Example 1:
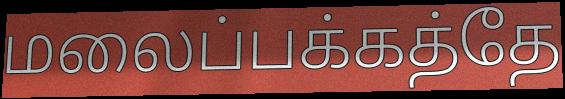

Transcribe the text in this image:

மலைப்பக்கத்தே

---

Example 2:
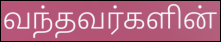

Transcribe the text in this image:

வந்தவர்களின்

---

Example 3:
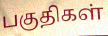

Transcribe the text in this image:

பகுதிகள்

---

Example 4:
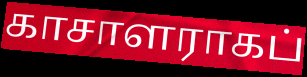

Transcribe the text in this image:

காசாளராகப்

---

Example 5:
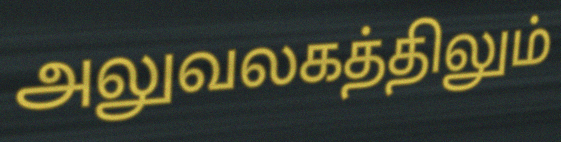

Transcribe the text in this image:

அலுவலகத்திலும்